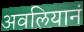
अवलियानं